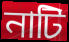
নাটি